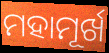
ମହାମୂର୍ଖ